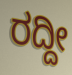
ರದ್ದೀ